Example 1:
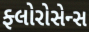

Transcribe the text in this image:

ફ્લોરોસેન્સ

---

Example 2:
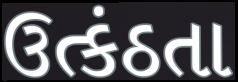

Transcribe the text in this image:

ઉત્કંઠતા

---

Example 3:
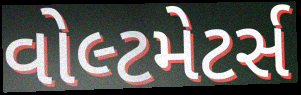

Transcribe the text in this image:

વોલ્ટમેટર્સ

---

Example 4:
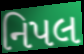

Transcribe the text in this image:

નિપલ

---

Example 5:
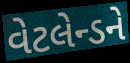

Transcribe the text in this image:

વેટલેન્ડને